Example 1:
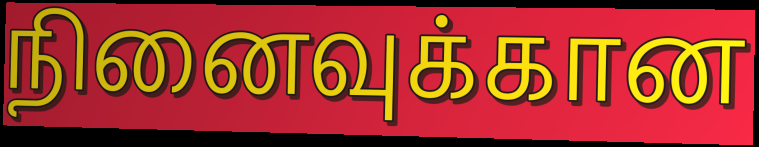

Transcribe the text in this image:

நினைவுக்கான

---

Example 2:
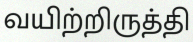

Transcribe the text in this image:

வயிற்றிருத்தி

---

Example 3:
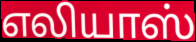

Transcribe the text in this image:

எலியாஸ்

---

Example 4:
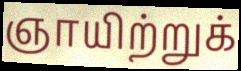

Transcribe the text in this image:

ஞாயிற்றுக்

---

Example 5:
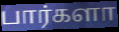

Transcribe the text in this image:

பார்களா